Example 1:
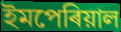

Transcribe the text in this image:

ইমপেৰিয়াল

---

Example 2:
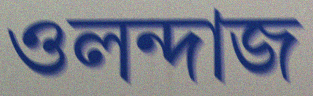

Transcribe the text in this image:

ওলন্দাজ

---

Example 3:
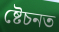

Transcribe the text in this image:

ষ্টেচনত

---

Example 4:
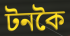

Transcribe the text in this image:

টনকৈ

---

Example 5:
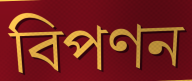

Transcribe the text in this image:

বিপণন